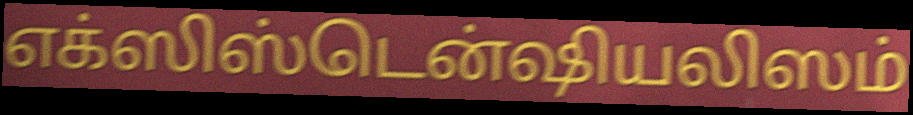
எக்ஸிஸ்டென்ஷியலிஸம்